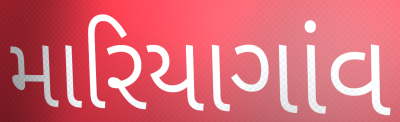
મારિયાગાંવ